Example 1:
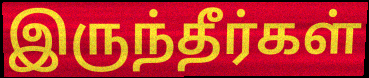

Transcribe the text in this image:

இருந்தீர்கள்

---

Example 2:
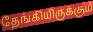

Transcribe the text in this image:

தேங்கியிருக்கும்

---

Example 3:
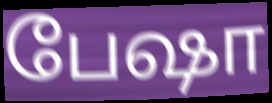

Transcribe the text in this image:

பேஷா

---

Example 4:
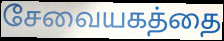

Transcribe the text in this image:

சேவையகத்தை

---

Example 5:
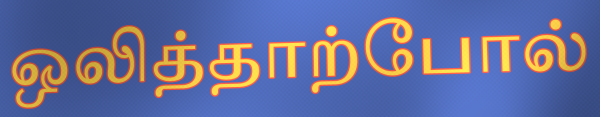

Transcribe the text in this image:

ஒலித்தாற்போல்